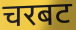
चरबट